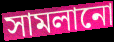
সামলানো